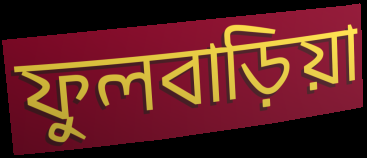
ফুলবাড়িয়া